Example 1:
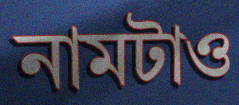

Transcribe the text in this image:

নামটাও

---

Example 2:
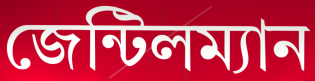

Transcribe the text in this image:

জেন্টিলম্যান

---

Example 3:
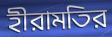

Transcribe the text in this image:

হীরামতির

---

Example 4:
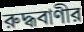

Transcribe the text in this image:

রুদ্ধবাণীর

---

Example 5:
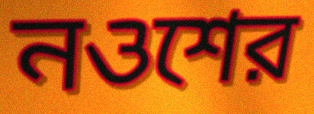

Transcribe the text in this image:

নওশের